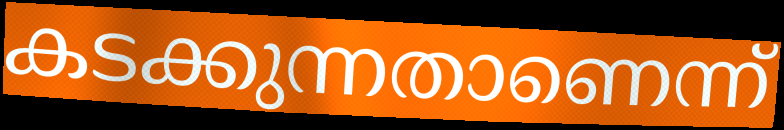
കടക്കുന്നതാണെന്ന്